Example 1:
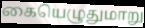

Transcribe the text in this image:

கையெழுதுமாறு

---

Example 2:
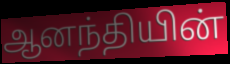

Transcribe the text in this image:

ஆனந்தியின்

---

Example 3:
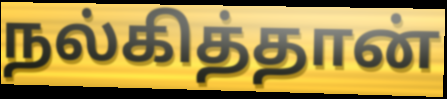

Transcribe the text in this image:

நல்கித்தான்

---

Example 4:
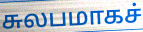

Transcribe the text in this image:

சுலபமாகச்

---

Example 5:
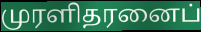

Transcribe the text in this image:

முரளிதரனைப்